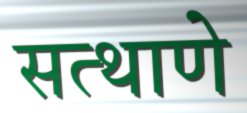
सत्थाणे